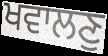
ਖਵਾਲਣੁ